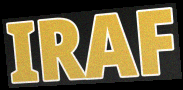
IRAF